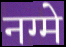
नग्मे